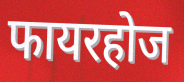
फायरहोज